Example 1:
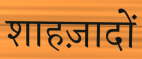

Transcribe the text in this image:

शाहज़ादों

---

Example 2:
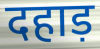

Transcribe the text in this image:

दहाड़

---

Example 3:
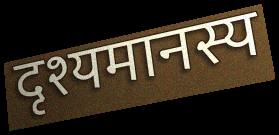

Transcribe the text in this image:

दृश्यमानस्य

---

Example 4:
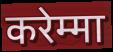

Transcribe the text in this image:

करेम्मा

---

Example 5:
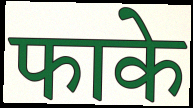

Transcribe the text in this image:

फाके